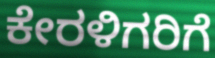
ಕೇರಳಿಗರಿಗೆ